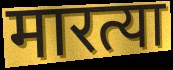
मारत्या